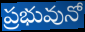
ప్రభువునో